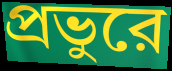
প্রভুরে